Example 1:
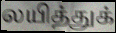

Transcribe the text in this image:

லயித்துக்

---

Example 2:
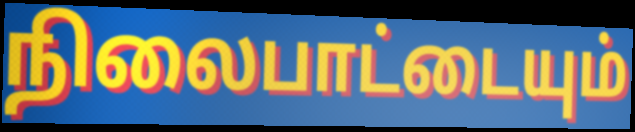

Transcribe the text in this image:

நிலைபாட்டையும்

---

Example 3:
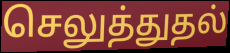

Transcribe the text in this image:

செலுத்துதல்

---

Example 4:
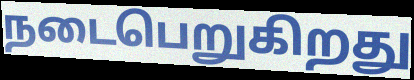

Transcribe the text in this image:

நடைபெறுகிறது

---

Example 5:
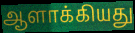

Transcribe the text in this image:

ஆளாக்கியது